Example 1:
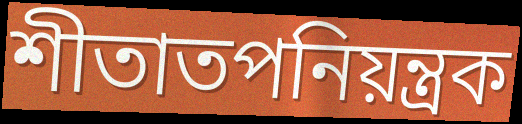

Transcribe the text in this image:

শীতাতপনিয়ন্ত্রক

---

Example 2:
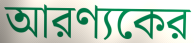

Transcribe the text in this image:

আরণ্যকের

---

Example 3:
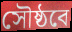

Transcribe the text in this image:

সৌষ্ঠবে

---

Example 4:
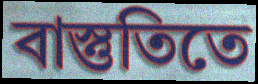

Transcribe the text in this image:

বাস্তুতিতে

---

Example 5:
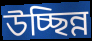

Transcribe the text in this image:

উচ্ছিন্ন